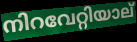
നിറവേറ്റിയാല്